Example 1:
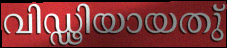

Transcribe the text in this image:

വിഡ്ഢിയായതു്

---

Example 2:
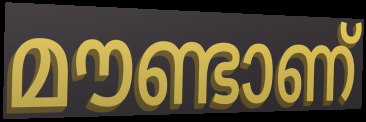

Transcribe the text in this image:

മൗണ്ടാണ്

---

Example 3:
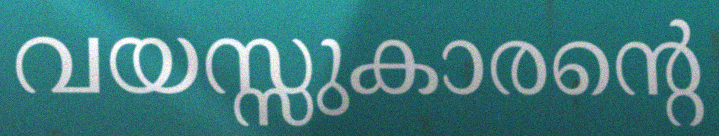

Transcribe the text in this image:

വയസ്സുകാരന്റെ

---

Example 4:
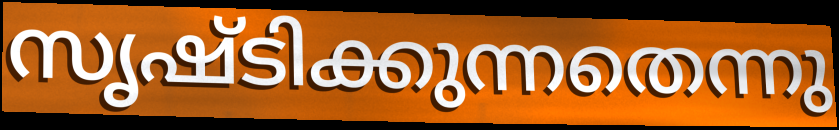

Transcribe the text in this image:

സൃഷ്ടിക്കുന്നതെന്നു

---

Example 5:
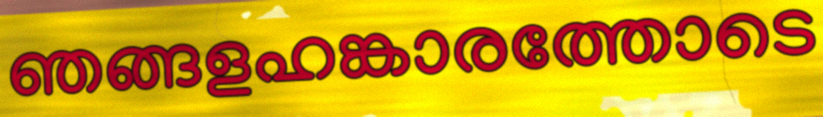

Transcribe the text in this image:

ഞങ്ങളഹങ്കാരത്തോടെ